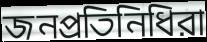
জনপ্রতিনিধিরা